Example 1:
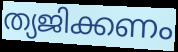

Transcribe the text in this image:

ത്യജിക്കണം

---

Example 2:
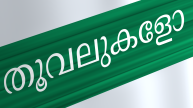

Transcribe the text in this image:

തൂവലുകളോ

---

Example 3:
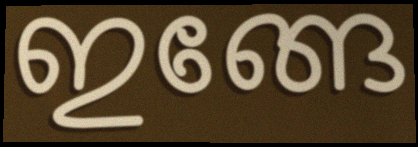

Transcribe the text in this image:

ഇങ്ങേ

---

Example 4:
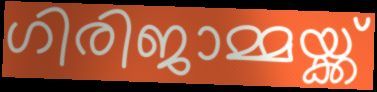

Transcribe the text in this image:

ഗിരിജാമ്മയ്ക്ക്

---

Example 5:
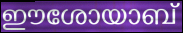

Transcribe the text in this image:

ഈശോയാബ്